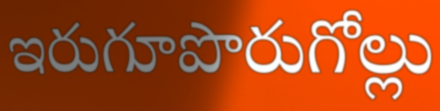
ఇరుగూపొరుగోల్లు